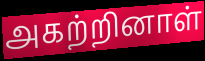
அகற்றினாள்